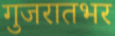
गुजरातभर